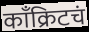
काँक्रिटचं